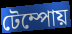
টেম্পোয়